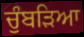
ਚੁੰਬੜਿਆ